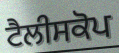
ਟੈਲੀਸਕੋਪ